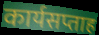
कार्यसप्ताह